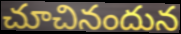
చూచినందున